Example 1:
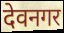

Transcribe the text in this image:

देवनगर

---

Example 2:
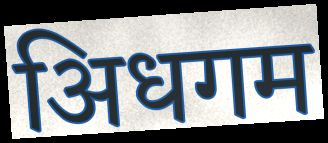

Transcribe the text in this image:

अिधगम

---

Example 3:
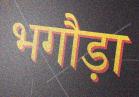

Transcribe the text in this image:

भगौड़ा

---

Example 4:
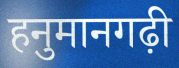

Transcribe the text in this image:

हनुमानगढ़ी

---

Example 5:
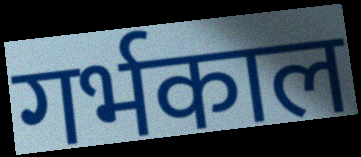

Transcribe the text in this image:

गर्भकाल